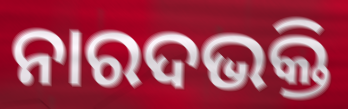
ନାରଦଭକ୍ତି